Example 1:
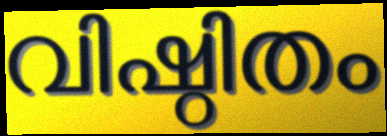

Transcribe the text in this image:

വിഷ്ഠിതം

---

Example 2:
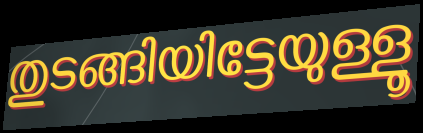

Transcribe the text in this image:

തുടങ്ങിയിട്ടേയുള്ളൂ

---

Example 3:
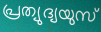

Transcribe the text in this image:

പ്രത്യുദ്യയുസ്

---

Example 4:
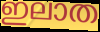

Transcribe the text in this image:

ഇലാത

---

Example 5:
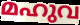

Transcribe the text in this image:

മഹുവ